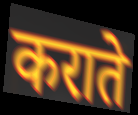
कराते